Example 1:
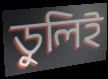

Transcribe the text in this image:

ডুলিই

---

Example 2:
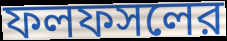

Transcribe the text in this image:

ফলফসলের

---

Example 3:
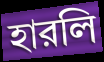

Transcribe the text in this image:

হারলি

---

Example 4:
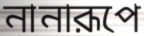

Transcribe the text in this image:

নানারূপে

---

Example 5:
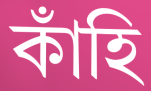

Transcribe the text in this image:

কাঁহি